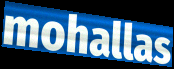
mohallas